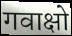
गवाक्षो